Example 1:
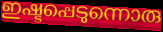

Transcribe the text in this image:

ഇഷ്ടപ്പെടുന്നൊരു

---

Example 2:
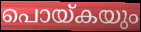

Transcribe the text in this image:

പൊയ്കയും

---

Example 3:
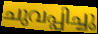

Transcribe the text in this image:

ചുവപ്പിച്ചു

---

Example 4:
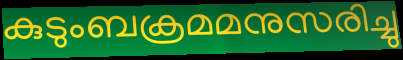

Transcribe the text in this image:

കുടുംബക്രമമനുസരിച്ചു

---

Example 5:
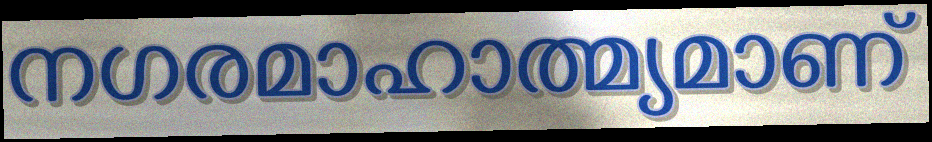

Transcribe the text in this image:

നഗരമാഹാത്മ്യമാണ്